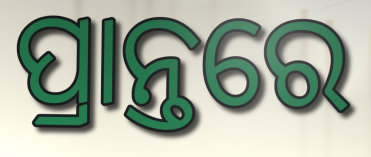
ପ୍ରାନ୍ତରେ